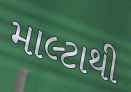
માલ્ટાથી